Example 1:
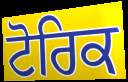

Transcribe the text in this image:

ਟੋਰਿਕ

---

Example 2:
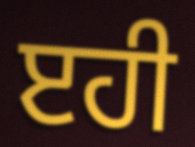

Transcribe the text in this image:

ੲਹੀ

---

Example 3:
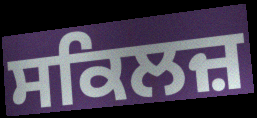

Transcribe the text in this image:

ਸਕਿਲਜ਼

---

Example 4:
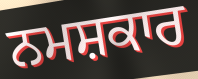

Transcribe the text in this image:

ਨਮਸ਼ਕਾਰ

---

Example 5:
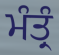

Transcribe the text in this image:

ਮੰਤ੍ਰੰ